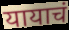
यायाचं